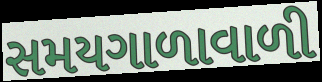
સમયગાળાવાળી